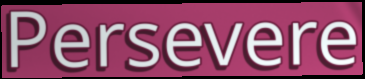
Persevere